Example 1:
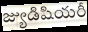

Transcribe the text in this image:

జ్యుడిషియరీ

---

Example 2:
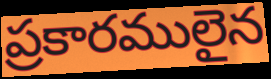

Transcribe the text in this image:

ప్రకారములైన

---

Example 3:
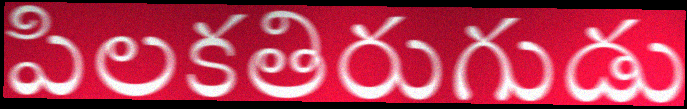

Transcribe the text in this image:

పిలకతిరుగుడు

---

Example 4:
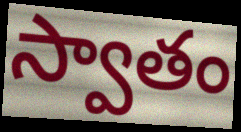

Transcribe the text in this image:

స్వాతం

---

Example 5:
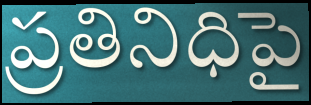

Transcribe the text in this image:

ప్రతినిధిపై